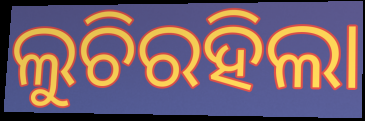
ଲୁଚିରହିଲା